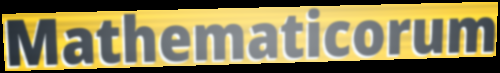
Mathematicorum